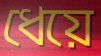
ধেয়ে